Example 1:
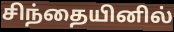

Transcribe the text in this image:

சிந்தையினில்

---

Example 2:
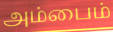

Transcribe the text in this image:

அம்பைம்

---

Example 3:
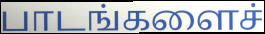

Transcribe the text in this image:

பாடங்களைச்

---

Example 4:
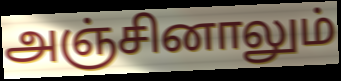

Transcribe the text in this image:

அஞ்சினாலும்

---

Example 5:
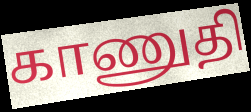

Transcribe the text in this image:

காணுதி